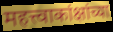
महत्त्वाकांक्षांच्या